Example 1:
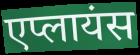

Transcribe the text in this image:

एप्लायंस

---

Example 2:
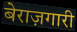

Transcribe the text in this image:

बेराज़गारी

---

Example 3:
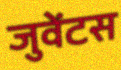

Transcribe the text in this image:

जुवेंटस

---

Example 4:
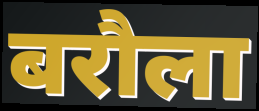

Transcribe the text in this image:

बरौला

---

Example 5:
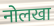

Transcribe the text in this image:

नोलखा